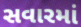
સવારમાં